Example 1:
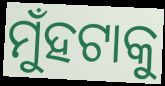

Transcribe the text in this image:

ମୁଁହଟାକୁ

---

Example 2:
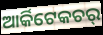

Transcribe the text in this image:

ଆର୍କିଟେକଚର୍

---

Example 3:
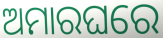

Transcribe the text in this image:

ଅମାରଘରେ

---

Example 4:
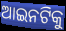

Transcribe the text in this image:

ଆଇନଟିକୁ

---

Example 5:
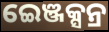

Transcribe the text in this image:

ଇେଞ୍ଜକ୍ସନ୍ର